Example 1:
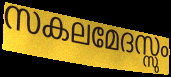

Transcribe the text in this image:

സകലമേദസ്സും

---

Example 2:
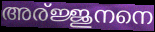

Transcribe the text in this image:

അര്ജ്ജുനനെ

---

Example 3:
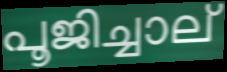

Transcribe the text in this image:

പൂജിച്ചാല്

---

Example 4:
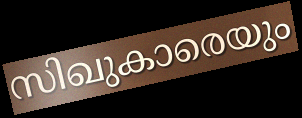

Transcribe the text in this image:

സിഖുകാരെയും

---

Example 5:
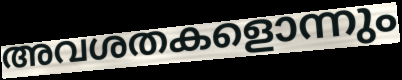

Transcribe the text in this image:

അവശതകളൊന്നും